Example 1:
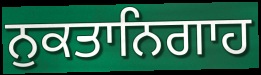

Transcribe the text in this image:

ਨੁਕਤਾਨਿਗਾਹ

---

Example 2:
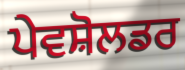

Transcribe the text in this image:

ਪੇਵਸ਼ੋਲਡਰ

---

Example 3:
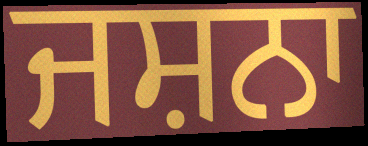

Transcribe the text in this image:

ਜਸ਼ਨਾ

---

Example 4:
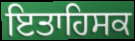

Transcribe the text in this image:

ਇਤਾਹਿਸਕ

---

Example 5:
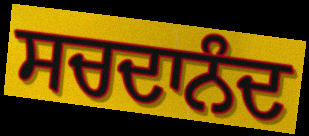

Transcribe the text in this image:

ਸਚਦਾਨੰਦ